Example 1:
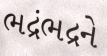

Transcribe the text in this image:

ભદ્રંભદ્રને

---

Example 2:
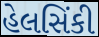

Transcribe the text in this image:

હેલસિંકી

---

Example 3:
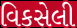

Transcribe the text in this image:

વિકસેલી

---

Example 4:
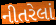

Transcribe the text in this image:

નીતરેલાં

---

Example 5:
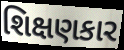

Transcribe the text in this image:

શિક્ષણકાર